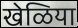
खेळिया